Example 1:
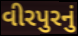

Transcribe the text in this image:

વીરપુરનું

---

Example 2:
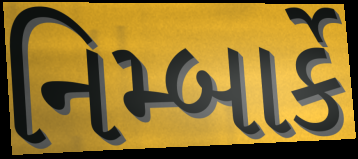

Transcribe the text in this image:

નિમ્બાર્કે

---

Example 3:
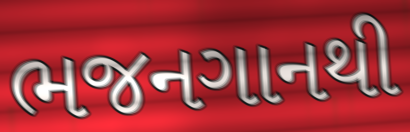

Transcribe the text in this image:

ભજનગાનથી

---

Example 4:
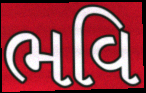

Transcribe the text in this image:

ભવિ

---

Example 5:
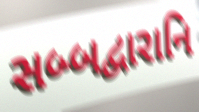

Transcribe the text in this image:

સબ્બદ્વારાનિ